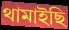
থামাইছি